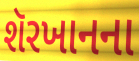
શૅરખાનના